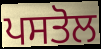
ਪਸਤੋਲ